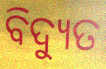
ବିଦ୍ଯୁତ